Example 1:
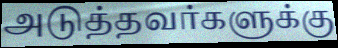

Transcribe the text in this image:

அடுத்தவர்களுக்கு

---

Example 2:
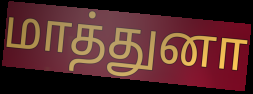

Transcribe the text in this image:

மாத்துனா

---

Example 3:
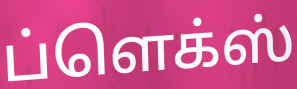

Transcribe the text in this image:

ப்ளெக்ஸ்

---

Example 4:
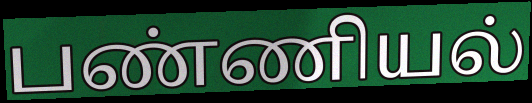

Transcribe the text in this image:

பண்ணியல்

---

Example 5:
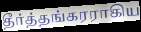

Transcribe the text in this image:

தீர்த்தங்கரராகிய